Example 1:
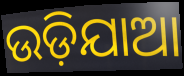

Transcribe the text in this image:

ଉଡ଼ିଯାଆ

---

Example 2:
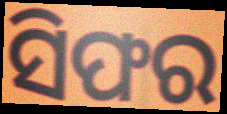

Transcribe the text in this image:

ସିଫର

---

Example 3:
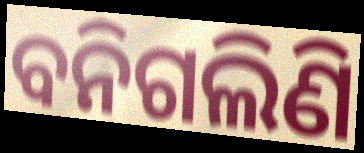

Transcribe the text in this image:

ବନିଗଲିଣି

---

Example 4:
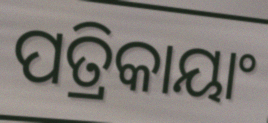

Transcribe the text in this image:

ପତ୍ରିକାୟାଂ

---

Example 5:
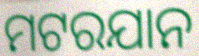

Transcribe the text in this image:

ମଟରଯାନ